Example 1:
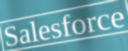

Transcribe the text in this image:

Salesforce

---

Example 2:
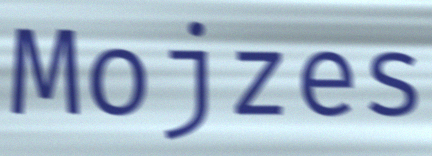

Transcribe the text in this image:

Mojzes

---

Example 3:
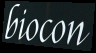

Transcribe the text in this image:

biocon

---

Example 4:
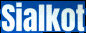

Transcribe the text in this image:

Sialkot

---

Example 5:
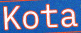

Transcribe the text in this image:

Kota